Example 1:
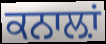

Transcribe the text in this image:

ਕਨਾਲ਼ਾਂ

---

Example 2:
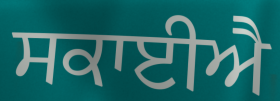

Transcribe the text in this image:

ਸਕਾਈਐ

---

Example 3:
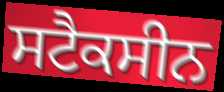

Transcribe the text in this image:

ਸਟੈਕਸੀਨ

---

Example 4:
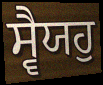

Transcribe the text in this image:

ਸ੍ਵੈਯਹੁ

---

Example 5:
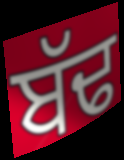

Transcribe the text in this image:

ਬੱਢ